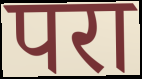
परा